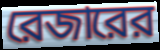
রেজারের